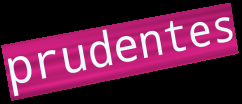
prudentes